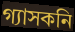
গ্যাসকনি